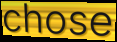
chose